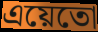
এয়েতো